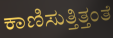
ಕಾಣಿಸುತ್ತಿತ್ತಂತೆ